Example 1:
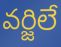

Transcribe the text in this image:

వర్జిలే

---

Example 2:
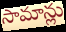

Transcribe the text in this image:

సామాన్లు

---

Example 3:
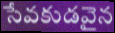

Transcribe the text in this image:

సేవకుడవైన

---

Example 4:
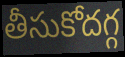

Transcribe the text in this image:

తీసుకోదగ్గ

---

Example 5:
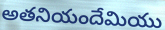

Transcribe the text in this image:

అతనియందేమియు